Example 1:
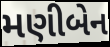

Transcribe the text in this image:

મણીબેન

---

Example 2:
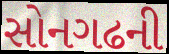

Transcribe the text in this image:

સોનગઢની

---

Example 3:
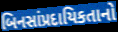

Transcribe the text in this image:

બિનસાંપ્રદાયિકતાનો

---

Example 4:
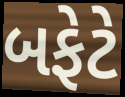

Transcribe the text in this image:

બફેટે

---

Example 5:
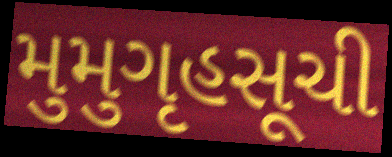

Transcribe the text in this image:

મુમુગૃહસૂચી